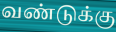
வண்டுக்கு